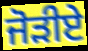
ਜੋੜੀਏ